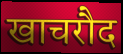
खाचरौद